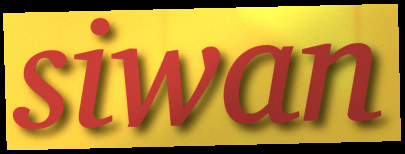
siwan